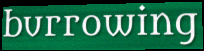
burrowing